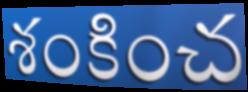
శంకించ